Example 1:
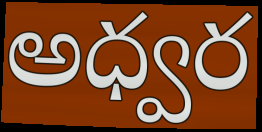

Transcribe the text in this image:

అధ్వర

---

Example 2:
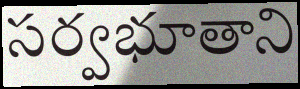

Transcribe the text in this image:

సర్వభూతాని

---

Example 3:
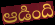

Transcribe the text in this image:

ఆడింది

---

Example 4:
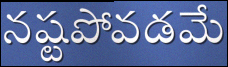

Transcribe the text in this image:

నష్టపోవడమే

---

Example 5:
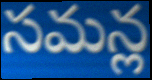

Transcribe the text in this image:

సమన్ల